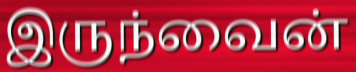
இருந்வைன்